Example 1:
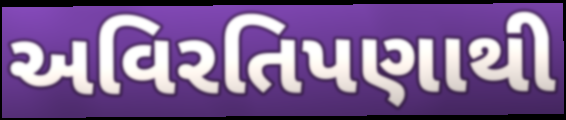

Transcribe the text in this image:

અવિરતિપણાથી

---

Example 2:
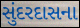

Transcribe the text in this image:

સુંદરદાસના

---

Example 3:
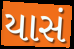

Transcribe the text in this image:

યાસં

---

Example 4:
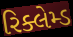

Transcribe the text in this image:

રિક્લેમ્ડ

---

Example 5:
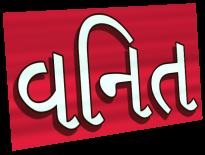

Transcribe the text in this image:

વનિત